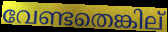
വേണ്ടതെങ്കില്